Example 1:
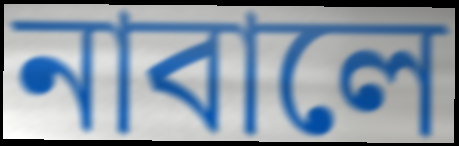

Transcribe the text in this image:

নাবালে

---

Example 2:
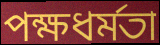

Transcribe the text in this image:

পক্ষধর্মতা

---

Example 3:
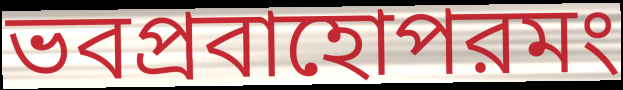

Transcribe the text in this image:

ভবপ্রবাহোপরমং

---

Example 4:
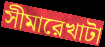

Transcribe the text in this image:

সীমারেখাটা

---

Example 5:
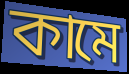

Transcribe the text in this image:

কামে